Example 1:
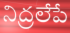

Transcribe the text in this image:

నిద్రలేపే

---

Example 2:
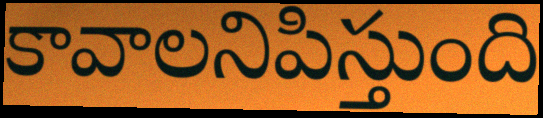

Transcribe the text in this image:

కావాలనిపిస్తుంది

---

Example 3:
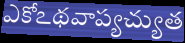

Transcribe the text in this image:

ఎకోఽథవాప్యచ్యుత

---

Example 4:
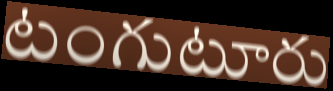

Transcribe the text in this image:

టంగుటూరు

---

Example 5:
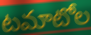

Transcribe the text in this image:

టమాటోల